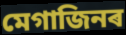
মেগাজিনৰ